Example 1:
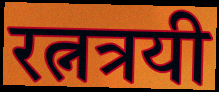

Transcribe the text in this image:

रत्नत्रयी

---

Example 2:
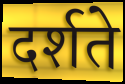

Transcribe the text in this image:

दर्शते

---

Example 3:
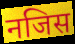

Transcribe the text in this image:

नजिस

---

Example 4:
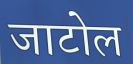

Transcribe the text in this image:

जाटोल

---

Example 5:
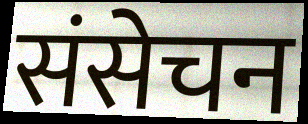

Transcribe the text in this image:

संसेचन